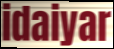
idaiyar